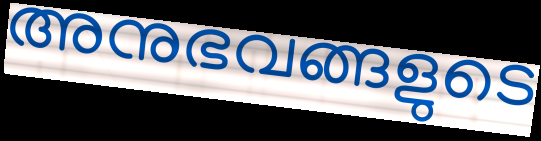
അനുഭവങ്ങളുടെ